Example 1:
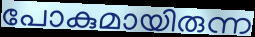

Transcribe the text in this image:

പോകുമായിരുന്ന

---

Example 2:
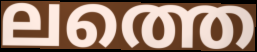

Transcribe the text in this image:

ലത്തെ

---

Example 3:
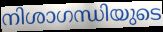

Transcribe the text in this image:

നിശാഗന്ധിയുടെ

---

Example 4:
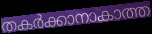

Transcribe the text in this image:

തകർക്കാനാകാത്ത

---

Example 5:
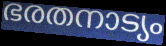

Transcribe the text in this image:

ഭരതനാട്യം